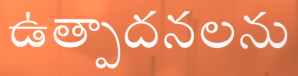
ఉత్పాదనలను